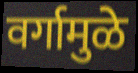
वर्गामुळे